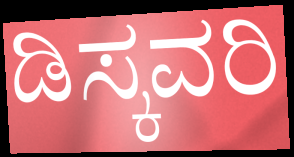
ಡಿಸ್ಕವರಿ